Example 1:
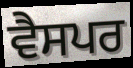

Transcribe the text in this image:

ਵੈਸਪਰ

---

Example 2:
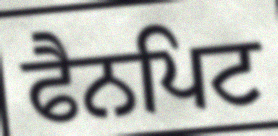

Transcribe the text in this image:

ਫੈਨਪਿਟ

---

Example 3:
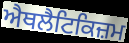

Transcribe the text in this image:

ਐਥਲੈਟਿਕਿਜ਼ਮ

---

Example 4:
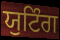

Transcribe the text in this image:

ਯੁਟਿੰਗ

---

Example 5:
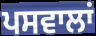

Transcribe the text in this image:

ਪਸਵਾਲਾਂ